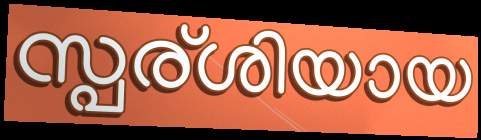
സ്പര്ശിയായ